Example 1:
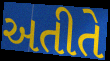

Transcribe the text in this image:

અતીતે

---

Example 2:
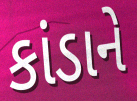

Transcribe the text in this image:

કાંડાને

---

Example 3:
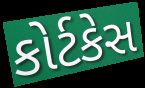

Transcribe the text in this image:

કોર્ટકેસ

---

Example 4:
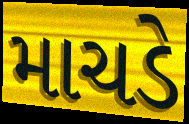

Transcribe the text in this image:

માચડે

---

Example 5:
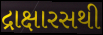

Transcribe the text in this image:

દ્રાક્ષારસથી